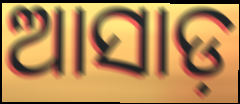
ଆସାଡ଼